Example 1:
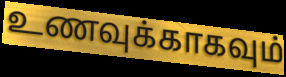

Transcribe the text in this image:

உணவுக்காகவும்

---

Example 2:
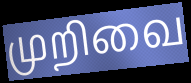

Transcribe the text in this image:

முறிவை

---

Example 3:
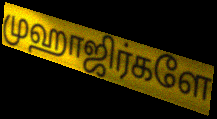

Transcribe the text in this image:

முஹாஜிர்களே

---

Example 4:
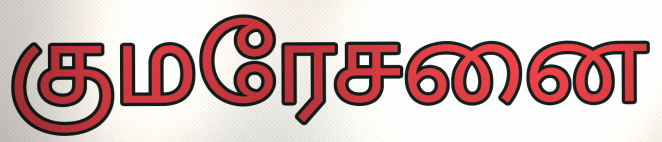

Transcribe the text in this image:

குமரேசனை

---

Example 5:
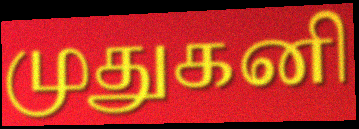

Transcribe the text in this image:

முதுகனி